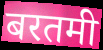
बरतमी